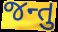
જન્તુ